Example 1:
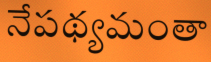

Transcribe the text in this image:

నేపథ్యమంతా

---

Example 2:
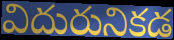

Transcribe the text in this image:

విదురునికడ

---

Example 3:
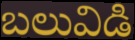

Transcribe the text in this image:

బలువిడి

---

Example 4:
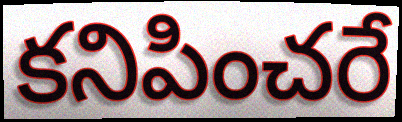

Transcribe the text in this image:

కనిపించరే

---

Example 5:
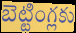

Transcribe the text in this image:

బెట్టింగ్లకు